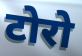
टोरो